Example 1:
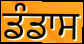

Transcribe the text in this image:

ਡੰਡਾਸ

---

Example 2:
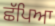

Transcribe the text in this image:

ਛੱਪਿਆ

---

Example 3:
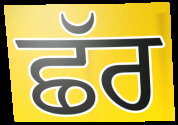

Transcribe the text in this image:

ਛੱਰ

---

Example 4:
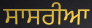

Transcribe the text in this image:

ਸਾਸਰੀਆ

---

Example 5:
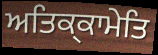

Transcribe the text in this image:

ਅਤਿਕ੍ਕਾਮੇਤਿ